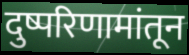
दुष्परिणामांतून